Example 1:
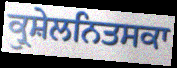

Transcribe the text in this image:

ਕ੍ਰੁਸ਼ੇਲਨਿਤਸਕਾ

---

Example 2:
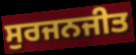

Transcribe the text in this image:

ਸੁਰਜਨਜੀਤ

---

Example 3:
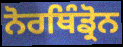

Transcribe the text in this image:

ਨੋਰਥਿੰਡ੍ਰੋਨ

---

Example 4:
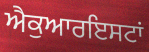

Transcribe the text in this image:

ਐਕੁਆਰਇਸਟਾਂ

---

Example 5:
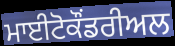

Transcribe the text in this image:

ਮਾਈਟੋਕੌਂਡਰੀਅਲ